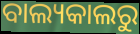
ବାଲ୍ୟକାଲରୁ